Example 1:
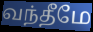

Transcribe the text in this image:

வந்தீமே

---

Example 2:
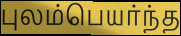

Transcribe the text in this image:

புலம்பெயர்ந்த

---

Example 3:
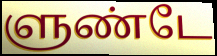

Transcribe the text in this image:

ளுண்டே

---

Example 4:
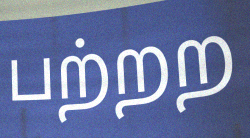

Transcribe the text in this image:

பற்றற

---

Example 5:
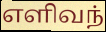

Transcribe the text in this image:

எளிவந்